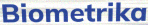
Biometrika